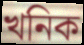
খনিক